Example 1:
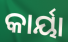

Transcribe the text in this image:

କାର୍ୟା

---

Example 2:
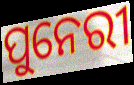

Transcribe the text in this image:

ପୁନେରୀ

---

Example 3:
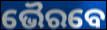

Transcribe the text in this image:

ଭୈରବେ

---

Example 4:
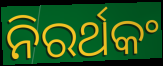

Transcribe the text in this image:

ନିରର୍ଥକଂ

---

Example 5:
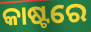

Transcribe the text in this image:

କାଷ୍ଟରେ